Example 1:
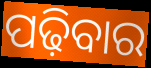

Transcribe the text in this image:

ପଢ଼ିବାର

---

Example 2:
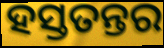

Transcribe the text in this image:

ହସ୍ତତନ୍ତର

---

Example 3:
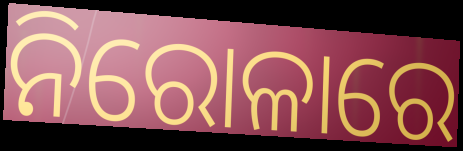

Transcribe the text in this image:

ନିରୋଳାରେ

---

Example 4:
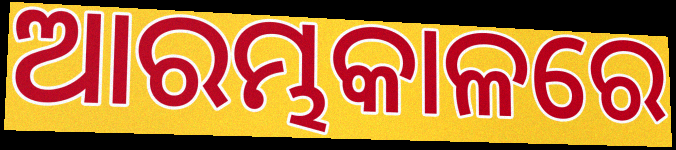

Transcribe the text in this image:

ଆରମ୍ଭକାଳରେ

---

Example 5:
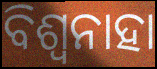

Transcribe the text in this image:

ବିଶ୍ଵନାହା